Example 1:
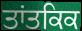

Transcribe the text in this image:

ਤਾਂਤਕਿਕ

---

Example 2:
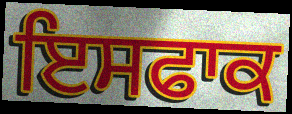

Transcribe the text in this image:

ਇਸਫਾਕ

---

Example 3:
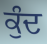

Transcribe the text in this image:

ਕੁੰਦ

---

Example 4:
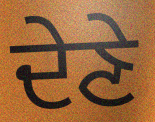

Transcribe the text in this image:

ਦੇਣੇ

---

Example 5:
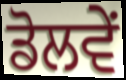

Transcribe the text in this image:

ਡੋਲਵੇਂ